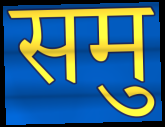
समु